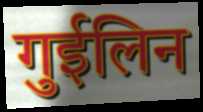
गुईलिन